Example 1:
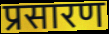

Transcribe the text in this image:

प्रसारण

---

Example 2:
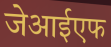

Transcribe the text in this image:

जेआईएफ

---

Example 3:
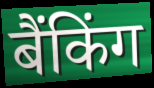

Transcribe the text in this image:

बैंकिंग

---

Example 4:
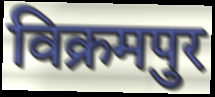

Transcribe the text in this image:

विक्रमपुर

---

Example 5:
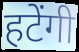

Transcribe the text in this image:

हटेंगी